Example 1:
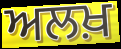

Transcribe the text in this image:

ਅਲਖ਼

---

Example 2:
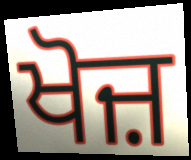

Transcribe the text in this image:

ਖੋਜ਼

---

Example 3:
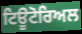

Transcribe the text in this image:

ਟਿਊਟੋਰਿਅਲ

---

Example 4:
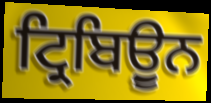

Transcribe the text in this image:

ਟ੍ਰਿਬਿਉੂਨ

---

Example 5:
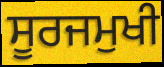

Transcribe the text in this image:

ਸੂਰਜਮੁਖੀ